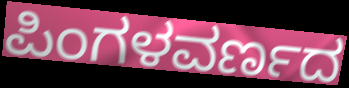
ಪಿಂಗಳವರ್ಣದ